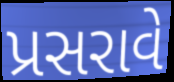
પ્રસરાવે